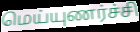
மெய்யுணர்ச்சி